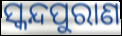
ସ୍କନ୍ଦପୁରାଣ